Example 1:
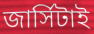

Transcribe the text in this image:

জার্সিটাই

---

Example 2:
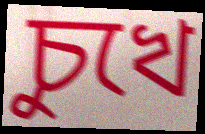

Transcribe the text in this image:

চুখে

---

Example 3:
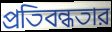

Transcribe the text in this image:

প্রতিবন্ধতার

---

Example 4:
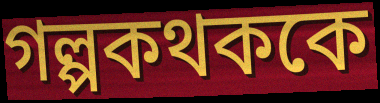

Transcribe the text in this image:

গল্পকথককে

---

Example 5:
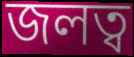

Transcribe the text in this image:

জলত্ব